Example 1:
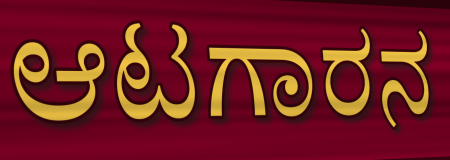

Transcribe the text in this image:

ಆಟಗಾರನ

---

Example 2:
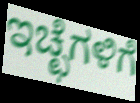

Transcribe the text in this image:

ಇಚ್ಛೆಗಳಿಗೆ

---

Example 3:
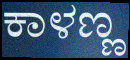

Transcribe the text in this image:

ಕಾಳಣ್ಣ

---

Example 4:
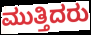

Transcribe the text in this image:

ಮುತ್ತಿದರು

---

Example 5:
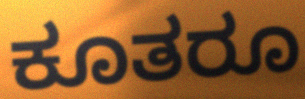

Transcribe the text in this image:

ಕೂತರೂ